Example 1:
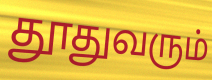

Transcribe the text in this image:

தூதுவரும்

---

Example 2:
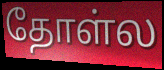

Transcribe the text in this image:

தோள்ல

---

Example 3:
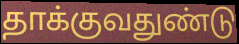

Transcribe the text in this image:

தாக்குவதுண்டு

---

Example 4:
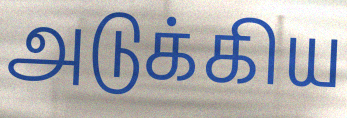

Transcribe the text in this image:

அடுக்கிய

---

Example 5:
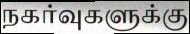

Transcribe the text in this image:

நகர்வுகளுக்கு